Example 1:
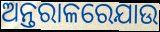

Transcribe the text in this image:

ଅନ୍ତରାଳରେଯାଉ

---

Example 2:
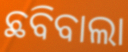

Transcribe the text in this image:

ଛବିବାଲା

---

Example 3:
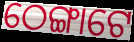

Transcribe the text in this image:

ଠେଙ୍ଗାଟେ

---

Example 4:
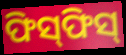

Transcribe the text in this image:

ଫିସ୍‍ଫିସ୍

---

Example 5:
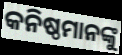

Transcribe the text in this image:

କନିଷ୍ଠମାନଙ୍କୁ